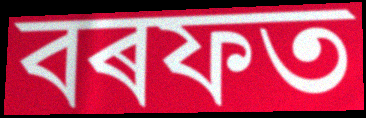
বৰফত